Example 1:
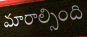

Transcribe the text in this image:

మారాల్సింది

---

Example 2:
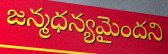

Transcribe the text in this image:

జన్మధన్యమైందని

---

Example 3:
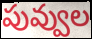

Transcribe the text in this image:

పువ్వుల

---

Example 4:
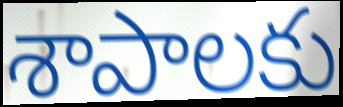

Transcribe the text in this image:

శాపాలకు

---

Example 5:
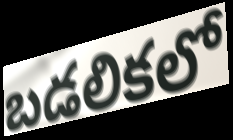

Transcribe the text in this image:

బడలికలో